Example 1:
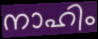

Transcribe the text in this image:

നാഹിം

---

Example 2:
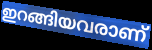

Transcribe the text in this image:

ഇറങ്ങിയവരാണ്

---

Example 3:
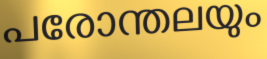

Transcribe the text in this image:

പരോന്തലയും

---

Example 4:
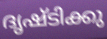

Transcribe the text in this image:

ദൃഷ്ടിക്കു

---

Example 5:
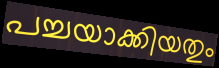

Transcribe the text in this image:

പച്ചയാക്കിയതും